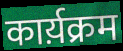
कार्य़क्रम